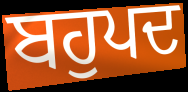
ਬਹੁਪਦ